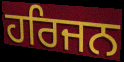
ਹਰਿਜਨ